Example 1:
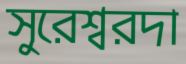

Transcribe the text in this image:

সুরেশ্বরদা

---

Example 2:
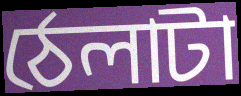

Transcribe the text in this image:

ঠেলাটা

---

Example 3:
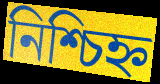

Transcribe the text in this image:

নিশ্চিহ্ন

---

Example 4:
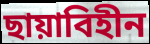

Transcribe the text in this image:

ছায়াবিহীন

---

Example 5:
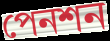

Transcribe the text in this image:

পেনশন